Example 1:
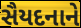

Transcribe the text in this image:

સૈયદનાને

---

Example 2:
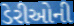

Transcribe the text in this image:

ડેરીઓની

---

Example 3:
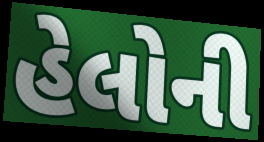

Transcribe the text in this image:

હેલોની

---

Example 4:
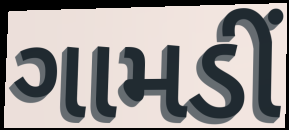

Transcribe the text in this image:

ગામડીં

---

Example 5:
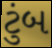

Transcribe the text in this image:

ટુંબ